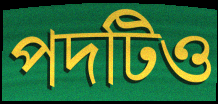
পদটিও